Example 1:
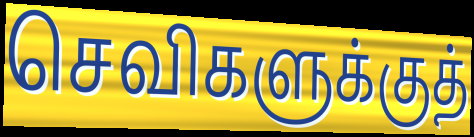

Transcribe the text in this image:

செவிகளுக்குத்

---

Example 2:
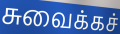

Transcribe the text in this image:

சுவைக்கச்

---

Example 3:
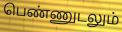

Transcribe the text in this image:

பெண்ணுடலும்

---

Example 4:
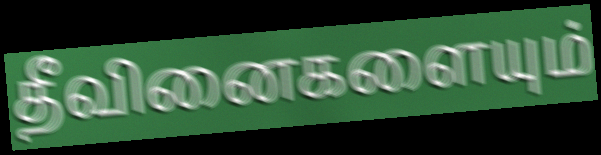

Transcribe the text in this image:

தீவினைகளையும்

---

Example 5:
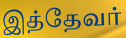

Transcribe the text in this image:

இத்தேவர்